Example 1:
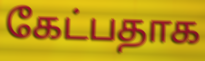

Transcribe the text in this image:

கேட்பதாக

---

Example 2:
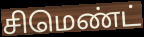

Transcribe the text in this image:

சிமெண்ட்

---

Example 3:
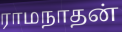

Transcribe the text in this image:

ராமநாதன்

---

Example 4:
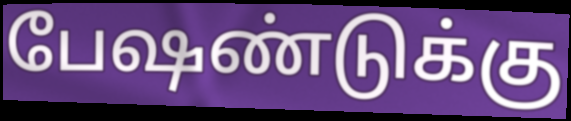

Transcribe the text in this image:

பேஷண்டுக்கு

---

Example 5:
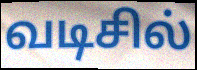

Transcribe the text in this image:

வடிசில்